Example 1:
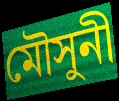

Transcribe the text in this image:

মৌসুনী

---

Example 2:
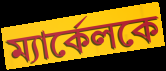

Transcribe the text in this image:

ম্যার্কেলকে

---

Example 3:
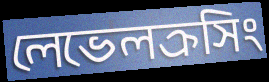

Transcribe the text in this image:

লেভেলক্রসিং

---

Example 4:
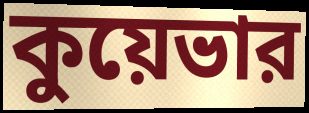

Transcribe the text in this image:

কুয়েভার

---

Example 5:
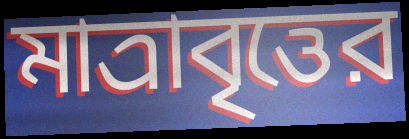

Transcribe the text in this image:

মাত্রাবৃত্তের